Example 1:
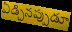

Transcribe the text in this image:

ఏడ్చినప్పుడూ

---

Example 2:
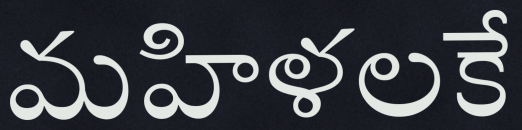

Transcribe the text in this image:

మహిళలకే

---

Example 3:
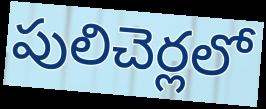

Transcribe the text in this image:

పులిచెర్లలో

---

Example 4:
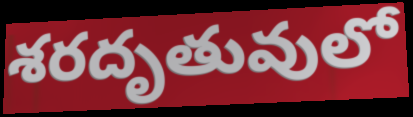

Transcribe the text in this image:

శరదృతువులో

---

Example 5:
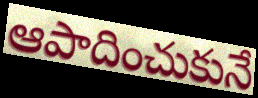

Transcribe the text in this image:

ఆపాదించుకునే